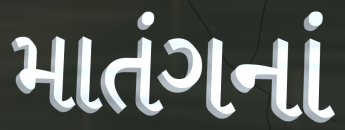
માતંગનાં